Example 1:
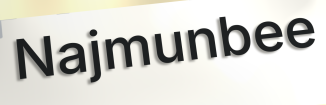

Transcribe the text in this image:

Najmunbee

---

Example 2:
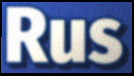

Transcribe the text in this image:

Rus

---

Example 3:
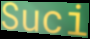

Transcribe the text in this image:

Suci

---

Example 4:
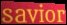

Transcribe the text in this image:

savior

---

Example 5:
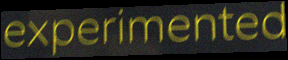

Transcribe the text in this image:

experimented